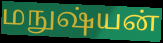
மநுஷ்யன்